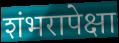
शंभरापेक्षा